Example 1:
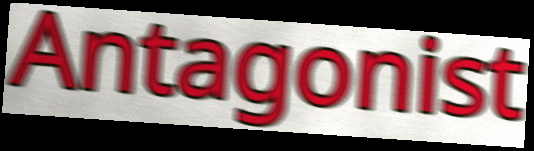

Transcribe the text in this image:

Antagonist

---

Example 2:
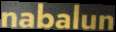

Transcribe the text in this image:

nabalun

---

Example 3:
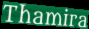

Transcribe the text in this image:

Thamira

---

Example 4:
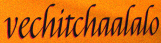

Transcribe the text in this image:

vechitchaalalo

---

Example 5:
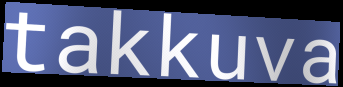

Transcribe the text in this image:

takkuva